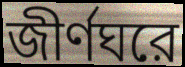
জীর্ণঘরে